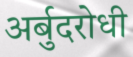
अर्बुदरोधी